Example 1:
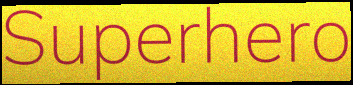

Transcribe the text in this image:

Superhero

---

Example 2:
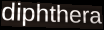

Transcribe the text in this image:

diphthera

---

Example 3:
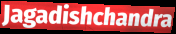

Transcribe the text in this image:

Jagadishchandra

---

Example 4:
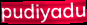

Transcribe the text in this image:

pudiyadu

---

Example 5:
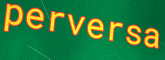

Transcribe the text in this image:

perversa